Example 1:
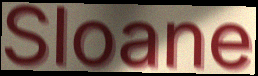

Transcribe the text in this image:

Sloane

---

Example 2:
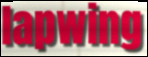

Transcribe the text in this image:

lapwing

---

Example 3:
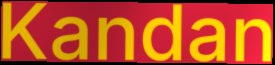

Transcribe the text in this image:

Kandan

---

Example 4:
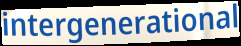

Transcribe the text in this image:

intergenerational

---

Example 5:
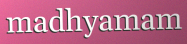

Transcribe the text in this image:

madhyamam